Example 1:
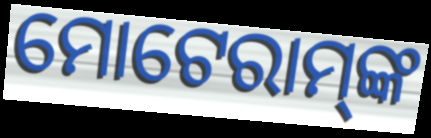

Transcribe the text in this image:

ମୋଟେରାମ୍‌ଙ୍କ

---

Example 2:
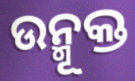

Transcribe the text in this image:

ଉନ୍ମୂକ୍ତ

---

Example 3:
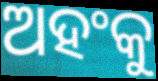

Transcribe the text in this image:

ଅହଂକୁ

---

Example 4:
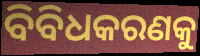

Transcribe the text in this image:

ବିବିଧକରଣକୁ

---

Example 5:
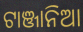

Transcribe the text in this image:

ଟାଞ୍ଜାନିଆ